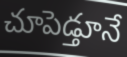
చూపెడ్తూనే